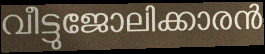
വീട്ടുജോലിക്കാരൻ